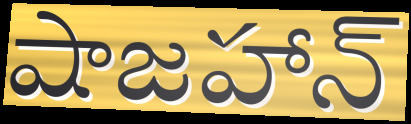
షాజహాన్